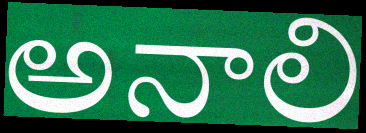
అనాలి